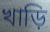
খাড়ি